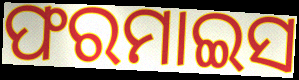
ଫରମାଇସ